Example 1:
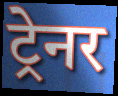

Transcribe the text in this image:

ट्रेनर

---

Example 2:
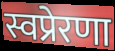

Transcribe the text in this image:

स्वप्रेरणा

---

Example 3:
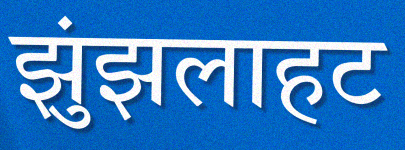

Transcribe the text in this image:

झुंझलाहट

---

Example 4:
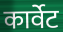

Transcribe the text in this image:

कार्वेट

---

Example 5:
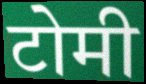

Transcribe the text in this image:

टोमी